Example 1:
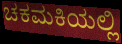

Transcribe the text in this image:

ಚಕಮಕಿಯಲ್ಲಿ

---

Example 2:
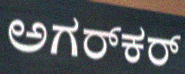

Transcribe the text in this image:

ಅಗರ್‌ಕರ್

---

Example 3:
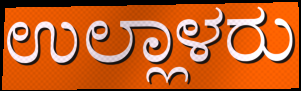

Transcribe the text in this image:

ಉಲ್ಲಾಳರು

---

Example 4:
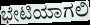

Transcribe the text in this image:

ಭೇಟಿಯಾಗಲಿ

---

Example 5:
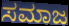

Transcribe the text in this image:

ಸಮಾಜ